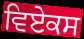
ਵਿਏਕਸ